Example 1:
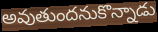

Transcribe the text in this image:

అవుతుందనుకొన్నాడు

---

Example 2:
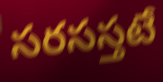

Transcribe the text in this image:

సరసస్తటే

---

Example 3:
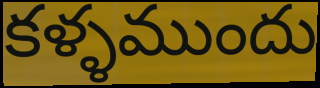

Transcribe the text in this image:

కళ్ళముందు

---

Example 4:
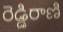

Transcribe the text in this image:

రెడ్డిరాణి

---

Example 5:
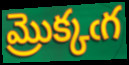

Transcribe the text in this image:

మ్రొక్కఁగ